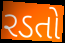
રડતો